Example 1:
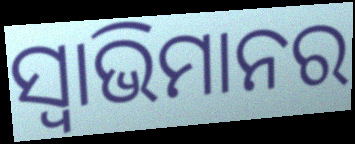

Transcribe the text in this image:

ସ୍ଵାଭିମାନର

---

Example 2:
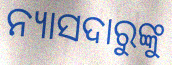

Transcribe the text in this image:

ନ୍ୟାସଦାରୁଙ୍କୁ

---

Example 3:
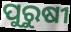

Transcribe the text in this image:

ପୁରୁଷୀ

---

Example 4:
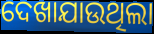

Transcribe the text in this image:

ଦେଖାଯାଉଥିଲା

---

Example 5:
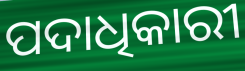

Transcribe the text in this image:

ପଦାଧିକାରୀ